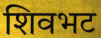
शिवभट